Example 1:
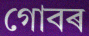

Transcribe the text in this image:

গোবৰ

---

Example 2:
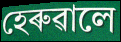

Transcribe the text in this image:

হেৰুৱালে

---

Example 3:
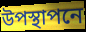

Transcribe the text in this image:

উপস্থাপনে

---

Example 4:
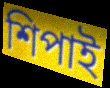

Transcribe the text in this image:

শিপাই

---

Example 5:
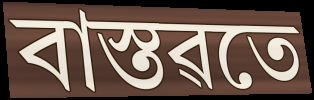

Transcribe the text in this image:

বাস্তৱতে